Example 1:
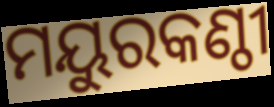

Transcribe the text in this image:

ମୟୁରକଣ୍ଠୀ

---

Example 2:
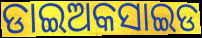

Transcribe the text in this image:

ଡାଇଅକସାଇଡ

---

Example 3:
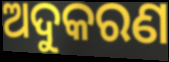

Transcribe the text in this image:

ଅଦୁକରଣ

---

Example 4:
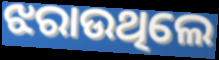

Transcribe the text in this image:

ଝରାଉଥିଲେ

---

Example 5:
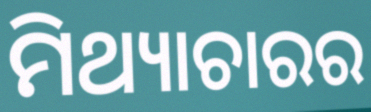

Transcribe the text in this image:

ମିଥ୍ୟାଚାରର